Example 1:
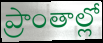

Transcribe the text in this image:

ప్రాంతాల్లో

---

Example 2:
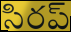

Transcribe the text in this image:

సిరప్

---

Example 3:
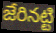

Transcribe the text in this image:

జేరినట్టి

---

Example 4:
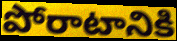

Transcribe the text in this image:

పోరాటానికి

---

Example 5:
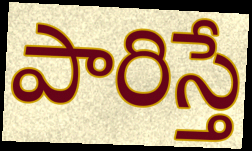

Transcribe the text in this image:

పారిస్తే